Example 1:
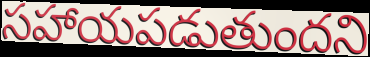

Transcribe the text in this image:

సహాయపడుతుందని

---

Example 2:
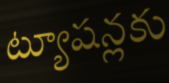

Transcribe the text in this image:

ట్యూషన్లకు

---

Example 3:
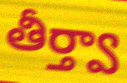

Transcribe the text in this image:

తీర్త్వా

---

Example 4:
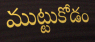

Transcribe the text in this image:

ముట్టుకోడం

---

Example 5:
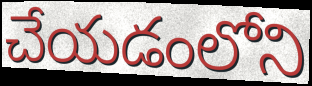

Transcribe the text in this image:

చేయడంలోని